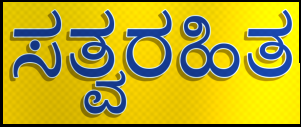
ಸತ್ವರಹಿತ